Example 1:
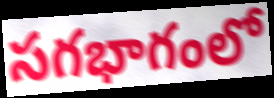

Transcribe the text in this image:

సగభాగంలో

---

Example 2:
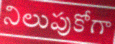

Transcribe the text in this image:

నిలుపుకోగా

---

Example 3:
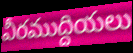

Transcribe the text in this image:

వీరముద్దియలు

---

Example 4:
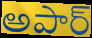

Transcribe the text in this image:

అపార్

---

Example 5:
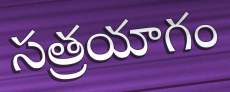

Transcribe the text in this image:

సత్రయాగం